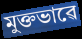
মুক্তভাৱে